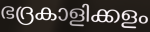
ഭദ്രകാളിക്കളം